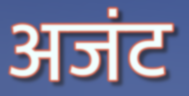
अजंट